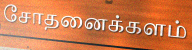
சோதனைக்களம்